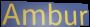
Ambur